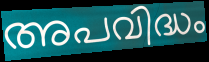
അപവിദ്ധം